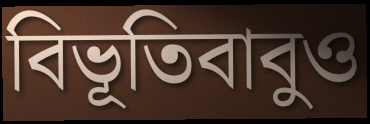
বিভূতিবাবুও